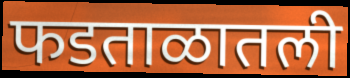
फडताळातली